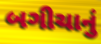
બગીચાનું